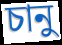
চানু